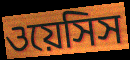
ওয়েসিস